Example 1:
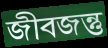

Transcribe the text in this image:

জীবজন্তু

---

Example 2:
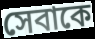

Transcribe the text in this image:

সেবাকে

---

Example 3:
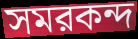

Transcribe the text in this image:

সমরকন্দ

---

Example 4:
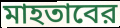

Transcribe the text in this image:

মাহতাবের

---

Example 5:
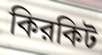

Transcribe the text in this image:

কিরকিট